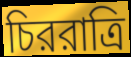
চিররাত্রি